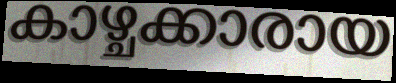
കാഴ്ചക്കാരായ